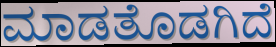
ಮಾಡತೊಡಗಿದೆ